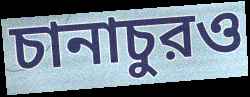
চানাচুরও